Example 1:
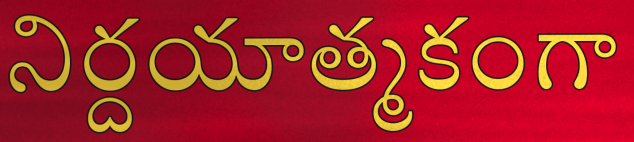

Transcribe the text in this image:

నిర్దయాత్మకంగా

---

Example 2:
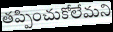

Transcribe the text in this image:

తప్పించుకోలేమని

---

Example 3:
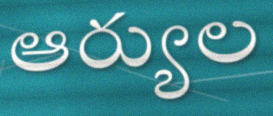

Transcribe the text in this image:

ఆర్యుల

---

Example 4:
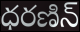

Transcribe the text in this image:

ధరణిన్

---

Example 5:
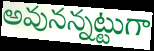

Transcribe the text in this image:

అవునన్నట్టుగా